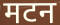
मटन